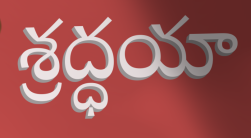
శ్రద్ధయా